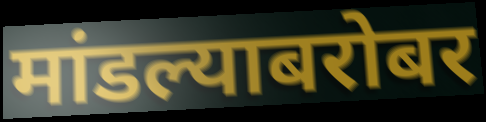
मांडल्याबरोबर